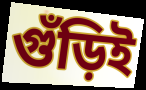
গুঁড়িই